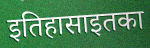
इतिहासाइतका